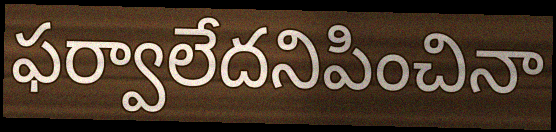
ఫర్వాలేదనిపించినా